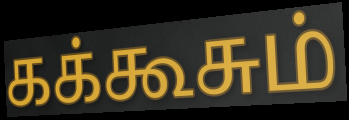
கக்கூசும்